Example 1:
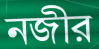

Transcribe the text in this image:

নজীর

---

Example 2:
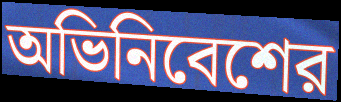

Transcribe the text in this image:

অভিনিবেশের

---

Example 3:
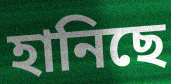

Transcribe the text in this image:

হানিছে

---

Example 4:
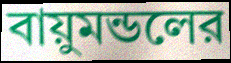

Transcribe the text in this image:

বায়ুমন্ডলের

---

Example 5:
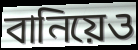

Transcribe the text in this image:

বানিয়েও